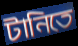
টানিতে